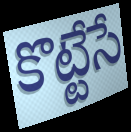
కొట్టేసే